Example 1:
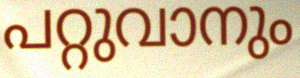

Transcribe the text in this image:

പറ്റുവാനും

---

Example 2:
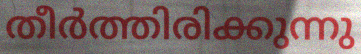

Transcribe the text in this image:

തീർത്തിരിക്കുന്നു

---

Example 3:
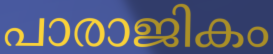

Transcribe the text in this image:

പാരാജികം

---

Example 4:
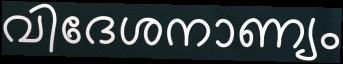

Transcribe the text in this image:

വിദേശനാണ്യം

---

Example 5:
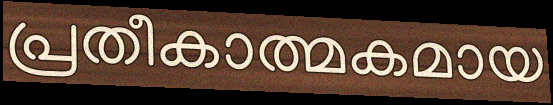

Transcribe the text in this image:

പ്രതീകാത്മകമായ